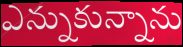
ఎన్నుకున్నాను